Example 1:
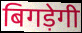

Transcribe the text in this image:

बिगड़ेगी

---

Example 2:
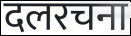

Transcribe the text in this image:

दलरचना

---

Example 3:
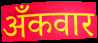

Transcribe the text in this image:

अँकवार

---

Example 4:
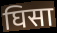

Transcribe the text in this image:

घिसा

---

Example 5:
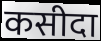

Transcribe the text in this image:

कसीदा